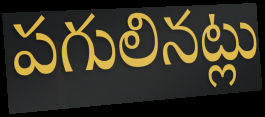
పగులినట్లు